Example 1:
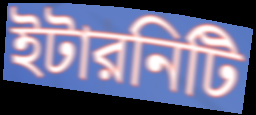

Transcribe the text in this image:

ইটারনিটি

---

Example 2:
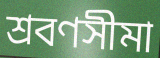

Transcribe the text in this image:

শ্রবণসীমা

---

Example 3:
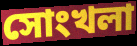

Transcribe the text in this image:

সোংখলা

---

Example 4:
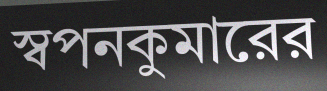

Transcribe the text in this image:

স্বপনকুমারের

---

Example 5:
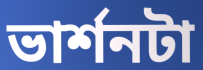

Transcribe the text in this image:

ভার্শনটা